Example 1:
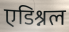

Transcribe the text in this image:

एडिश्नल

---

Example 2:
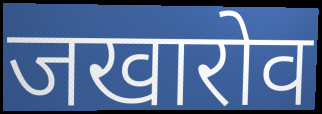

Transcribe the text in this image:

जखारोव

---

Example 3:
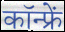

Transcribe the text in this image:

कॉन्फ्रें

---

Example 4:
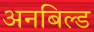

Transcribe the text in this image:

अनबिल्ड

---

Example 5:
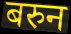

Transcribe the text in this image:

बरुन